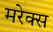
मरेक्स